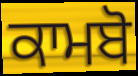
ਕਾਮਬੋ